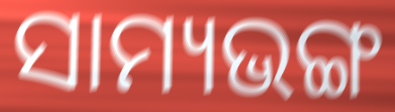
ସାମ୍ଯଭଙ୍ଗ